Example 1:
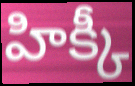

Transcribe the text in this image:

హిక్కీ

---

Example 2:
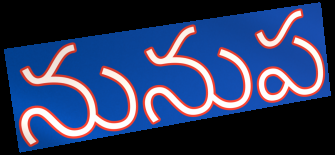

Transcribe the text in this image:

నునుప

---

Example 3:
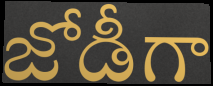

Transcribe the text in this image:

జోడీగా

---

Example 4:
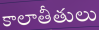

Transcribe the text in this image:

కాలాతీతులు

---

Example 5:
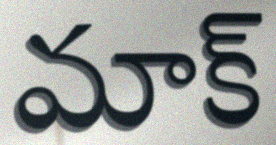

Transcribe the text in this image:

మాక్